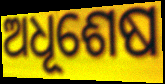
ଅଧୂଶେଷ